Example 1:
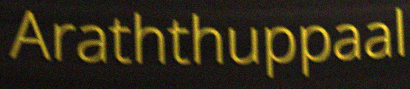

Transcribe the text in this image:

Araththuppaal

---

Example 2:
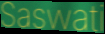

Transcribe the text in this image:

Saswati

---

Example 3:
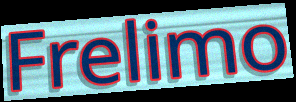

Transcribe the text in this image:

Frelimo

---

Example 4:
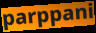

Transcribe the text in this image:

parppani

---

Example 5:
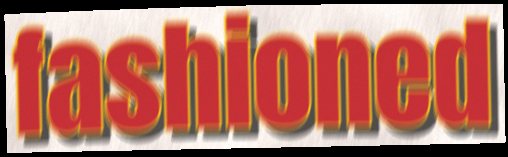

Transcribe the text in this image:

fashioned